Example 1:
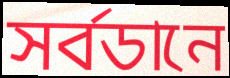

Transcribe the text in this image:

সর্বডানে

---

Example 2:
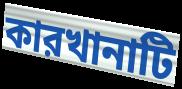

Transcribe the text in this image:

কারখানাটি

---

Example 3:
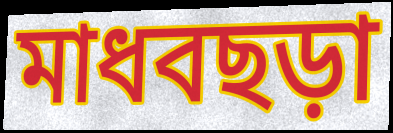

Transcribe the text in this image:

মাধবছড়া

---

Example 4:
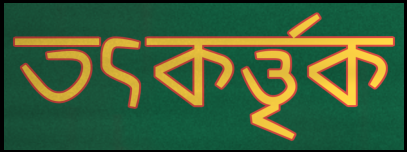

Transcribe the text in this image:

তৎকর্ত্তৃক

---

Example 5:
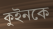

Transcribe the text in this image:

কুইনকে